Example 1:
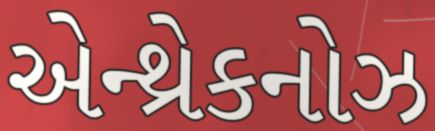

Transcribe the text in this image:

એન્થ્રેકનોઝ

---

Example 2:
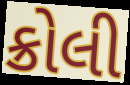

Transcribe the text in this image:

ક્રોલી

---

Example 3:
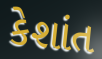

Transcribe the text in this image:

કેશાંત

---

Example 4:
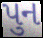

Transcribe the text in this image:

પુન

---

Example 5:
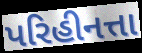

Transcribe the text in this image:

પરિહીનત્તા